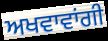
ਅਖਵਾਵਾਂਗੀ